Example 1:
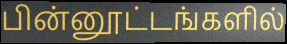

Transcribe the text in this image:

பின்னூட்டங்களில்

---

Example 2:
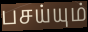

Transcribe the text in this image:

பசய்யும்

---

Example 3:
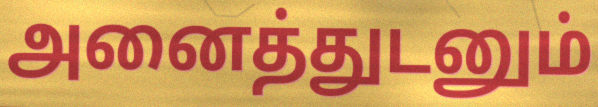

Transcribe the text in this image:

அனைத்துடனும்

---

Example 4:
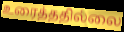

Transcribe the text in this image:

உரைத்ததில்லை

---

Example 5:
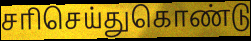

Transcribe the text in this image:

சரிசெய்துகொண்டு